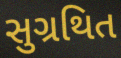
સુગ્રથિત